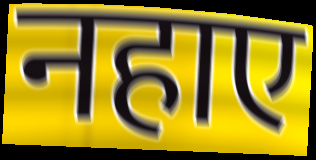
नहाए